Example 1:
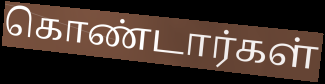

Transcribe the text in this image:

கொண்டார்கள்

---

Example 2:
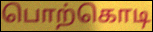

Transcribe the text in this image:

பொற்கொடி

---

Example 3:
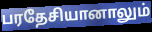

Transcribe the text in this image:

பரதேசியானாலும்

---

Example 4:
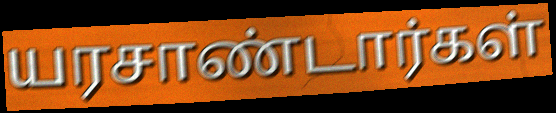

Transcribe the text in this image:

யரசாண்டார்கள்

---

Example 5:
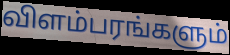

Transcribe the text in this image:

விளம்பரங்களும்